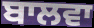
ਬਾਲਵਾ